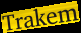
Trakem